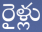
రైళ్లు